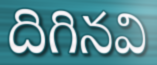
దిగినవి